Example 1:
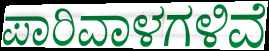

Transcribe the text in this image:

ಪಾರಿವಾಳಗಳಿವೆ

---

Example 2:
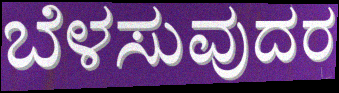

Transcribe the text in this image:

ಬೆಳಸುವುದರ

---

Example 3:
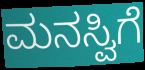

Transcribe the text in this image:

ಮನಸ್ವಿಗೆ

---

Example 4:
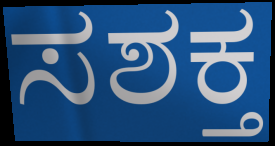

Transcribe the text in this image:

ಸಶಕ್ತ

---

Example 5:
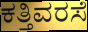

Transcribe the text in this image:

ಕತ್ತಿವರಸೆ